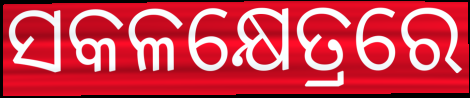
ସକଳକ୍ଷେତ୍ରରେ